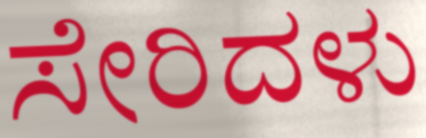
ಸೇರಿದಳು